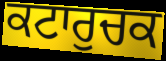
ਕਟਾਰੁਚਕ